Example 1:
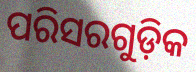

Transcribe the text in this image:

ପରିସରଗୁଡ଼ିକ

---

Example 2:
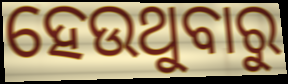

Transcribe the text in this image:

ହେଉଥୁବାରୁ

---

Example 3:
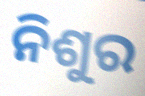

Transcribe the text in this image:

ନିଶୁର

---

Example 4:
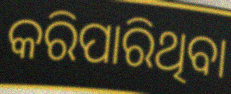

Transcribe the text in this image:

କରିପାରିଥିବା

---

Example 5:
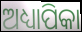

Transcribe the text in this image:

ଅଧ୍ୟାପିକା